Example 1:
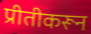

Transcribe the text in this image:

प्रीतीकरून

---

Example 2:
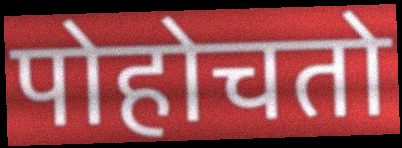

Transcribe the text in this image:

पोहोचतो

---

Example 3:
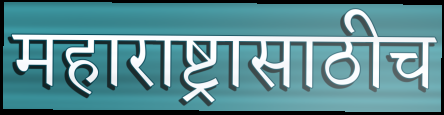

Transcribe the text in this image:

महाराष्ट्रासाठीच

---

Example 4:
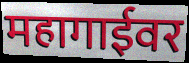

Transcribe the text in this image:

महागाईवर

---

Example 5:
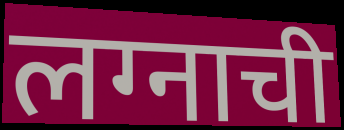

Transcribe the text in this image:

लग्नाची